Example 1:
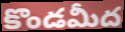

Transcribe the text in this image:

కొండమీద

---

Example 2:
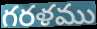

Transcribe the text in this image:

గరళము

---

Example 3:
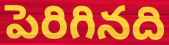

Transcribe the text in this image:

పెరిగినది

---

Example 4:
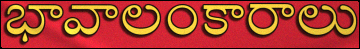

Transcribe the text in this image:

భావాలంకారాలు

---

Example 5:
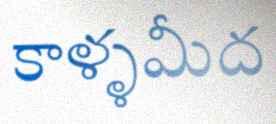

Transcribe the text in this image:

కాళ్ళమీద